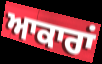
ਆਕਾਰਾਂ